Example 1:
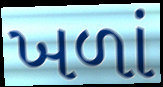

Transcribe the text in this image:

ખળાં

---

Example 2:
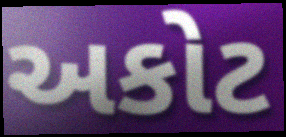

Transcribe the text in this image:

અકોટ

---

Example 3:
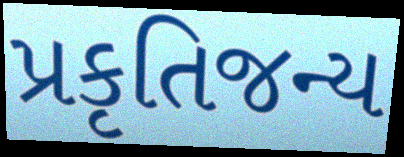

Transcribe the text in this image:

પ્રકૃતિજન્ય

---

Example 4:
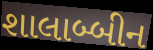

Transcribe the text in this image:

શાલાબ્બીન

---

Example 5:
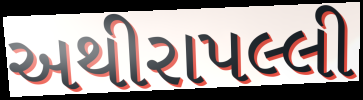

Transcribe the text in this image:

અથીરાપલ્લી